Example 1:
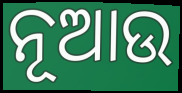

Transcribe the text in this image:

ନୂଆଉ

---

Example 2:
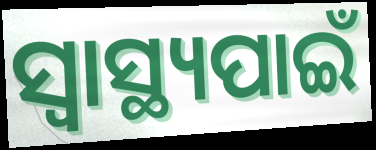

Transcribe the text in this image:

ସ୍ଵାସ୍ଥ୍ୟପାଇଁ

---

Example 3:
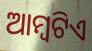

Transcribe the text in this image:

ଆମ୍ବଟିଏ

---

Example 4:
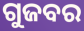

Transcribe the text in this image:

ଗୁଜବର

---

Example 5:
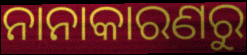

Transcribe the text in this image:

ନାନାକାରଣରୁ